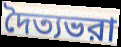
দৈত্যভরা